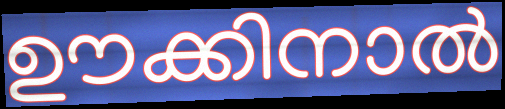
ഊക്കിനാൽ